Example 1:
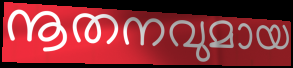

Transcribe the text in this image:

നൂതനവുമായ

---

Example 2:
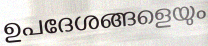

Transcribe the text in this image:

ഉപദേശങ്ങളെയും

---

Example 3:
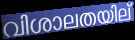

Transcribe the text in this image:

വിശാലതയില്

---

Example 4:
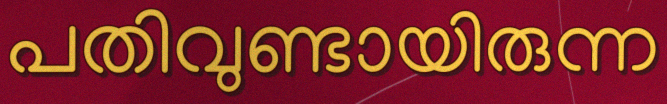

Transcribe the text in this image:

പതിവുണ്ടായിരുന്ന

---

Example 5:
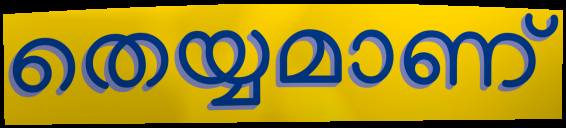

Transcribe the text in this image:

തെയ്യമാണ്